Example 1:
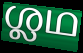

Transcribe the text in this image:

ശ്ലഥ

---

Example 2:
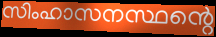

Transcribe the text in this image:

സിംഹാസനസ്ഥന്റെ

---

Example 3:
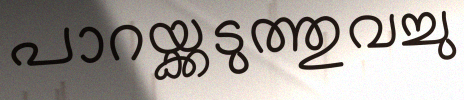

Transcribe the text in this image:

പാറയ്ക്കടുത്തുവച്ചു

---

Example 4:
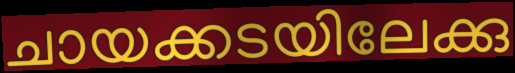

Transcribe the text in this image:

ചായക്കടയിലേക്കു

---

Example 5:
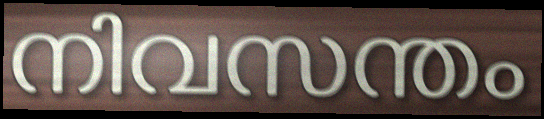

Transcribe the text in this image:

നിവസന്തം